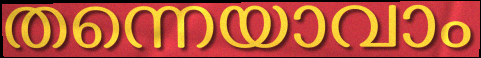
തന്നെയാവാം